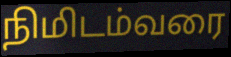
நிமிடம்வரை